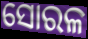
ସୋରଳ